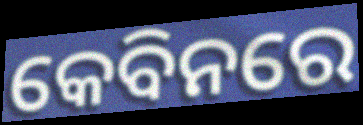
କେବିନରେ